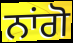
ਨਾਂਗੋ